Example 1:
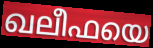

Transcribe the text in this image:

ഖലീഫയെ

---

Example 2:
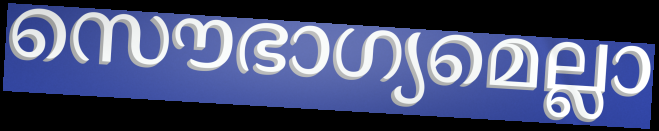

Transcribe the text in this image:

സൌഭാഗ്യമെല്ലാ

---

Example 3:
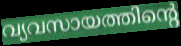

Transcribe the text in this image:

വ്യവസായത്തിന്റെ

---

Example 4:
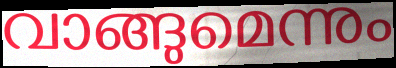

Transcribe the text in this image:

വാങ്ങുമെന്നും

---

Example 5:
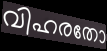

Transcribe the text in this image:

വിഹരതോ